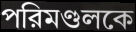
পরিমণ্ডলকে